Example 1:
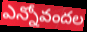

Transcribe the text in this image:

ఎన్నోవందల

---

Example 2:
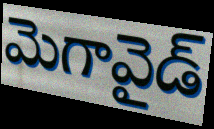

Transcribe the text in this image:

మెగావైడ్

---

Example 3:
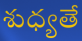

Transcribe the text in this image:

శుధ్యతే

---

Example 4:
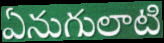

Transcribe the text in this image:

ఏనుగులాటి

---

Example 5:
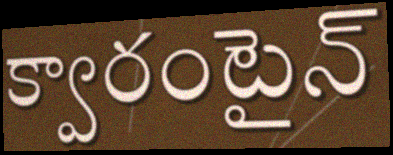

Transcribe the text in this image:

క్వారంటైన్